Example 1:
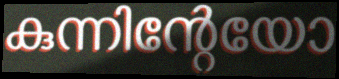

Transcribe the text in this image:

കുന്നിന്റേയോ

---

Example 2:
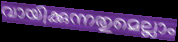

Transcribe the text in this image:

വായിക്കുന്നതുമെല്ലാം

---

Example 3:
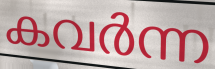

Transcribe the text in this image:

കവർന്ന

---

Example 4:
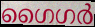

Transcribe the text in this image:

ഗൈഗർ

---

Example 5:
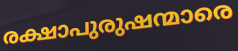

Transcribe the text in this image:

രക്ഷാപുരുഷന്മാരെ